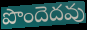
పొందెదవు